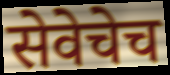
सेवेचेच